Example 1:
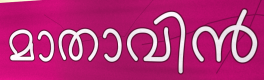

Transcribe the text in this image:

മാതാവിൻ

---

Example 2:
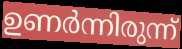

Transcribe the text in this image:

ഉണർന്നിരുന്ന്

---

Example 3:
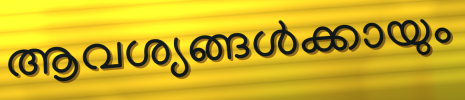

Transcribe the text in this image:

ആവശ്യങ്ങൾക്കായും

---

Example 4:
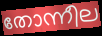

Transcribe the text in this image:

തോന്നീല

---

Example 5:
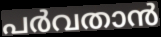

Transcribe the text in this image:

പർവതാൻ